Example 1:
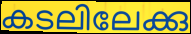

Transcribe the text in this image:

കടലിലേക്കു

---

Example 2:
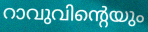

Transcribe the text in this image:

റാവുവിന്റെയും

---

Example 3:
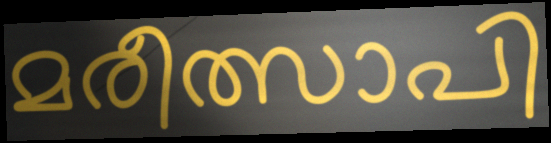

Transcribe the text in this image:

മരീത്സാപി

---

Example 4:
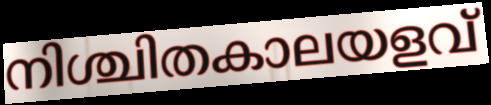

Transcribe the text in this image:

നിശ്ചിതകാലയളവ്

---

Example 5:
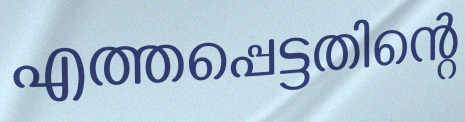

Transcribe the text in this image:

എത്തപ്പെട്ടതിന്റെ